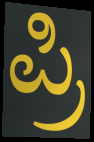
ಪ್ರಿ